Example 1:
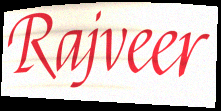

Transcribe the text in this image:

Rajveer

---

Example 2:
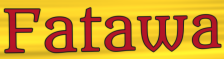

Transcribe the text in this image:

Fatawa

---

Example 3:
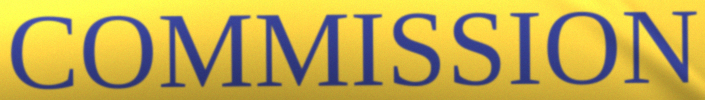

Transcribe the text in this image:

COMMISSION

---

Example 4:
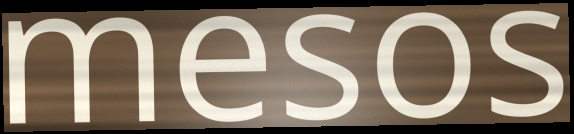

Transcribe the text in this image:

mesos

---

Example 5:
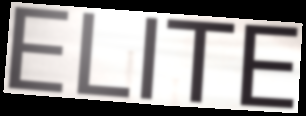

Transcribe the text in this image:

ELITE